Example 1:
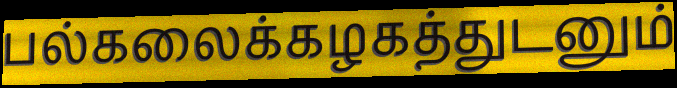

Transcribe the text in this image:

பல்கலைக்கழகத்துடனும்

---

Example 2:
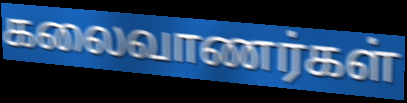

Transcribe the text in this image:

கலைவாணர்கள்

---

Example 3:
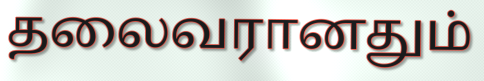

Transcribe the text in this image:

தலைவரானதும்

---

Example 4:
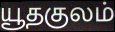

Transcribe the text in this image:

யூதகுலம்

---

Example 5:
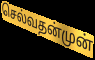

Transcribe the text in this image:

செல்வதன்முன்